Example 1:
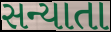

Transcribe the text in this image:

સન્યાતા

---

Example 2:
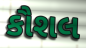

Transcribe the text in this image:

કૌશલ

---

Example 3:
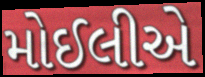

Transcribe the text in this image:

મોઈલીએ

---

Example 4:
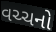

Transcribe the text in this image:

વચ્ચનો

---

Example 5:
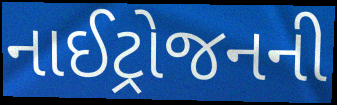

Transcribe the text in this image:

નાઈટ્રોજનની